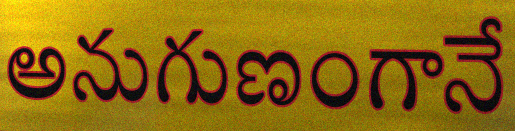
అనుగుణంగానే